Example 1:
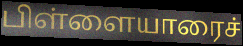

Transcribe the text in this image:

பிள்ளையாரைச்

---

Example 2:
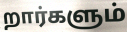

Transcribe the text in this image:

றார்களும்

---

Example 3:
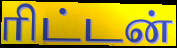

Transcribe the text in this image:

ரிட்டன்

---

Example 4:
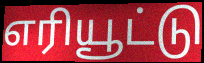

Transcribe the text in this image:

எரியூட்டு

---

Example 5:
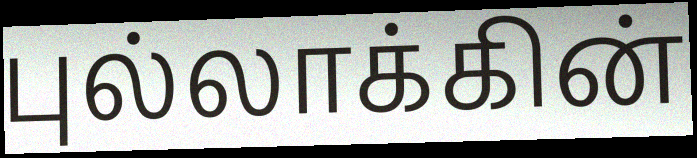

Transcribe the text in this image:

புல்லாக்கின்